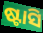
ଷ୍ଟାସି